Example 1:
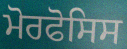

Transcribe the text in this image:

ਮੋਰਫੋਸਿਸ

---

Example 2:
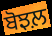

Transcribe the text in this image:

ਬੋਝਲ਼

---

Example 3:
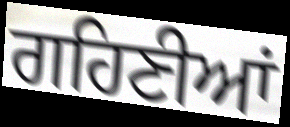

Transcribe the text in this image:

ਗਹਿਣੀਆਂ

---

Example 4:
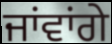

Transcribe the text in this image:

ਜਾਂਵਾਂਗੇ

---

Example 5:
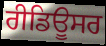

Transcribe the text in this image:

ਰੀਡਿਊਸਰ